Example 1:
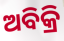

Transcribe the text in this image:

ଅବିକ୍ରି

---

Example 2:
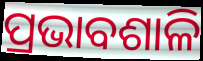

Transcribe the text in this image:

ପ୍ରଭାବଶାଳି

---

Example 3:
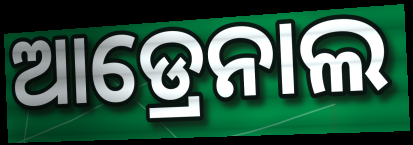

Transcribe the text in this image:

ଆଡ୍ରେନାଲ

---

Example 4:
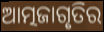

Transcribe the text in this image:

ଆତ୍ମଜାଗୃତିର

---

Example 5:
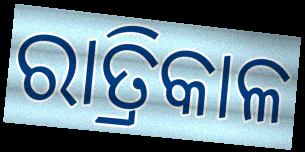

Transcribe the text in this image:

ରାତ୍ରିକାଳ